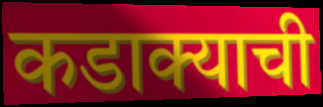
कडाक्याची